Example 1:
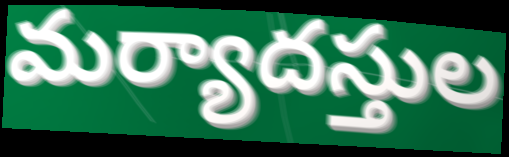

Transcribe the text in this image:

మర్యాదస్తుల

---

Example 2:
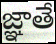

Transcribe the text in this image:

జ్ఞాతే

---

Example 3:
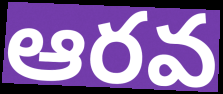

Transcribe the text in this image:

ఆరవ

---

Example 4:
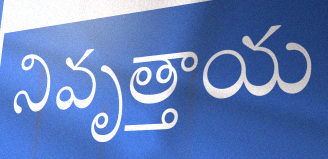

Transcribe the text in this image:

నివృత్తాయ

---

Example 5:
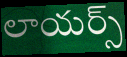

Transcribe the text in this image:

లాయర్స్